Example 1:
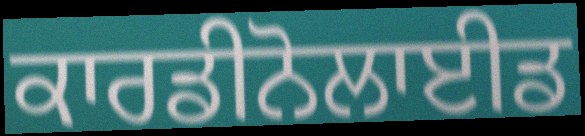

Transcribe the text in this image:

ਕਾਰਡੀਨੋਲਾਈਡ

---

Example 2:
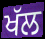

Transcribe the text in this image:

ਖੱਲ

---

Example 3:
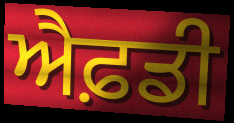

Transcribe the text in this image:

ਐਫ਼ਡੀ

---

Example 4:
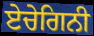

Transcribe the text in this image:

ਏਚੇਗਿਨੀ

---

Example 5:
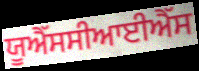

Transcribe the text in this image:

ਯੂਐੱਸਸੀਆਈਐੱਸ